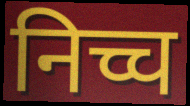
निच्च